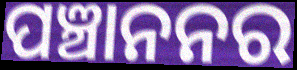
ପଞ୍ଚାନନର